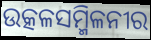
ଉତ୍କଳସମ୍ମିଳନୀର